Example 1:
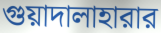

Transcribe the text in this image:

গুয়াদালাহারার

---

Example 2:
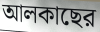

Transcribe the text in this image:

আলকাছের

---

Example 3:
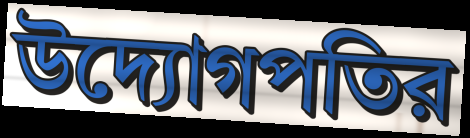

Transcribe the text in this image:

উদ্যোগপতির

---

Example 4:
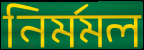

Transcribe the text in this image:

নির্মমল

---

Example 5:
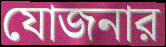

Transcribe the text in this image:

যোজনার